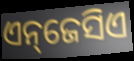
ଏନ୍‌ଜେସିଏ